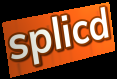
splicd